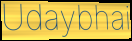
Udaybhai